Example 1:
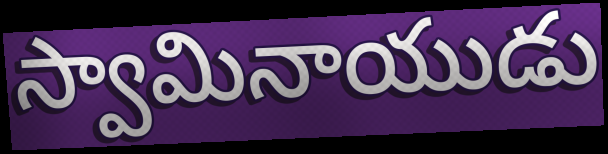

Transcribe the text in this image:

స్వామినాయుడు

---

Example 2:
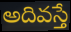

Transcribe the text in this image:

అదివస్తే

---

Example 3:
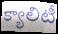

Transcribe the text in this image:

క్యాలిటీ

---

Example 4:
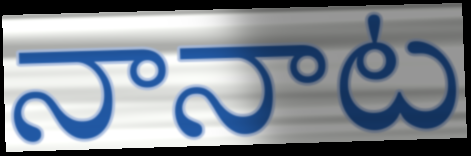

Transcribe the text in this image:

నానాట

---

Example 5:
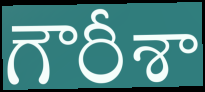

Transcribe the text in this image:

గౌరీశా